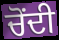
ਚੋੰਦੀ